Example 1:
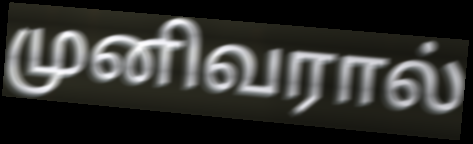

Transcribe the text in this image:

முனிவரால்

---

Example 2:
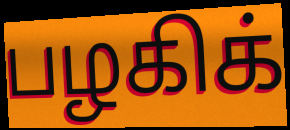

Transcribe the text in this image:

பழகிக்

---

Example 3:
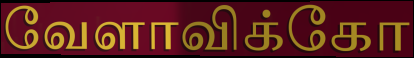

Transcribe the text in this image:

வேளாவிக்கோ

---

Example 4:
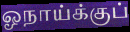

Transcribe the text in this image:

ஓநாய்க்குப்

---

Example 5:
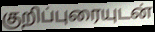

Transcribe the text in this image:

குறிப்புரையுடன்